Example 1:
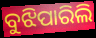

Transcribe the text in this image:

ବୁଝିପାରିଲି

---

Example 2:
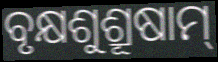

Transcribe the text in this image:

ବୃକ୍ଷଶୁଶ୍ରୂଷାମ୍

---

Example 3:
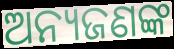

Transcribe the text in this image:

ଅନ୍ୟଜଣଙ୍କ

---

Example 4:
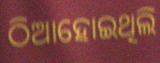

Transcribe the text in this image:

ଠିଆହୋଇଥିଲି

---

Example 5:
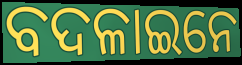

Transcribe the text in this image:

ବଦଳାଇନେ